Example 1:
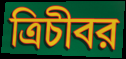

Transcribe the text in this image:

ত্রিচীবর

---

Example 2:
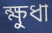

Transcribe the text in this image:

ক্ষুধা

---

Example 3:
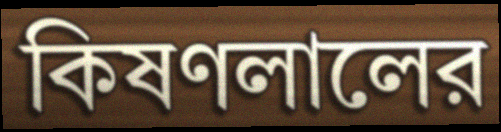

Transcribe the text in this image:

কিষণলালের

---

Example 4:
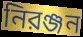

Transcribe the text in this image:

নিরঞ্জন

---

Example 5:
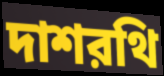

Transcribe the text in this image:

দাশরথি